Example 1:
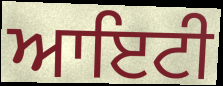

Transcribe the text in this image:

ਆਇਟੀ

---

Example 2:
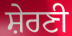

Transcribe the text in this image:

ਸ਼ੇਰਣੀ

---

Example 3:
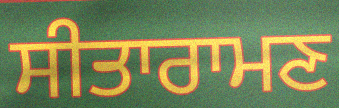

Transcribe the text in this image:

ਸੀਤਾਰਾਮਣ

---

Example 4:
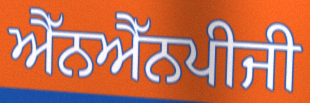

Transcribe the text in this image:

ਐੱਨਐੱਨਪੀਜੀ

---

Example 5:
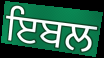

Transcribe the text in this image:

ਇਬਲ